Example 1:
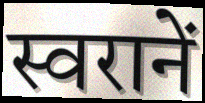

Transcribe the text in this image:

स्वरानें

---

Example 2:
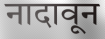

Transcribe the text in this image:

नादावून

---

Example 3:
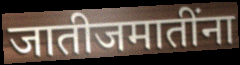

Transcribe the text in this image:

जातीजमातींना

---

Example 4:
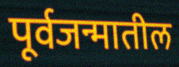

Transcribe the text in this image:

पूर्वजन्मातील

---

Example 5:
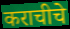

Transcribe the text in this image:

कराचीचे